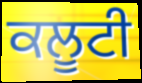
ਕਲੂਟੀ